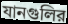
যানগুলির